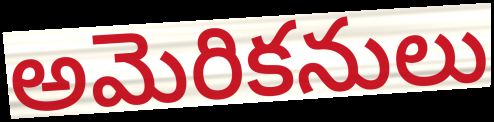
అమెరికనులు